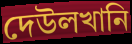
দেউলখানি